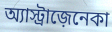
অ্যাস্ট্রাজ়েনেকা